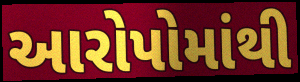
આરોપોમાંથી